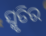
ସ୍ମୃତିର